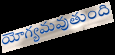
యోగ్యమవుతుంది